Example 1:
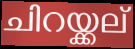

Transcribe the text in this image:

ചിറയ്ക്കല്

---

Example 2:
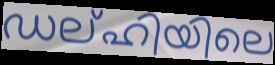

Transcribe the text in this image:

ഡല്ഹിയിലെ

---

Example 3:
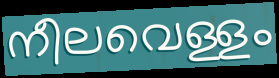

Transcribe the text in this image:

നീലവെള്ളം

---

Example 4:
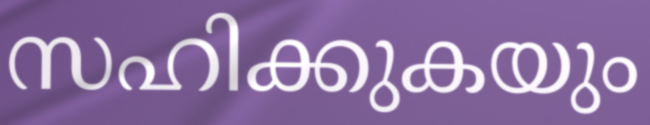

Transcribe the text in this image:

സഹിക്കുകയും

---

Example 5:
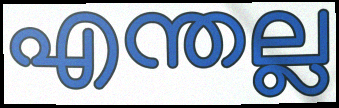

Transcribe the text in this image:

എന്തല്ല